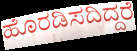
ಹೊರಡಿಸದಿದ್ದರೆ